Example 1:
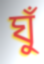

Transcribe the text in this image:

ঘুঁ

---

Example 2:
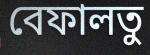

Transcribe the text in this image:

বেফালতু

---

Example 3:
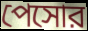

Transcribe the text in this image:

পেসোর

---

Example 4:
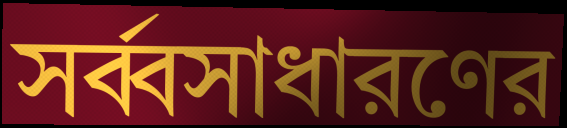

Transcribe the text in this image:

সর্ব্বসাধারণের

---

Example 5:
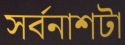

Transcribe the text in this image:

সর্বনাশটা